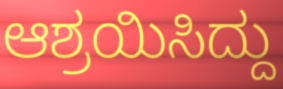
ಆಶ್ರಯಿಸಿದ್ದು